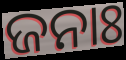
ଜନାଃ